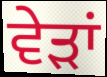
ਵੇੜਾਂ